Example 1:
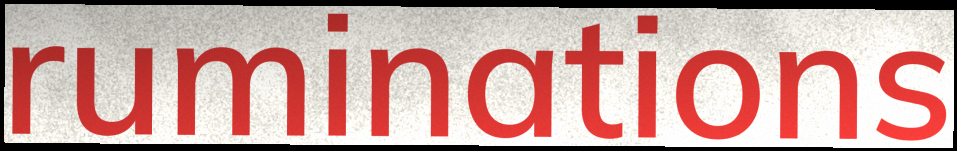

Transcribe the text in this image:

ruminations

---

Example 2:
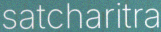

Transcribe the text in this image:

satcharitra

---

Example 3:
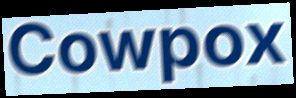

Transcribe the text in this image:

Cowpox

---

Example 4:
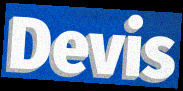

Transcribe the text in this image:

Devis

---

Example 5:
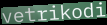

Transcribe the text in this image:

vetrikodi